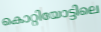
കൊറ്റിയോട്ടിലെ